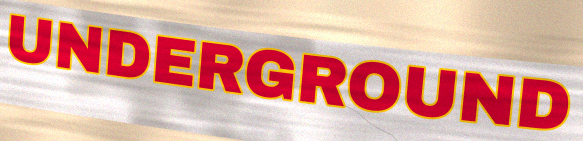
UNDERGROUND